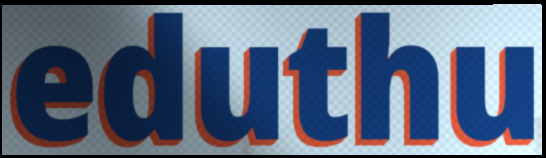
eduthu